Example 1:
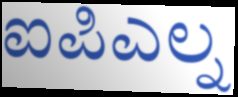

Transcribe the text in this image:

ಐಪಿಎಲ್ನ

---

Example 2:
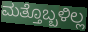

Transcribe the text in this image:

ಮತ್ತೊಬ್ಬಳಿಲ್ಲ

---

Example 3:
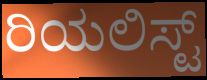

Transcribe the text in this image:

ರಿಯಲಿಸ್ಟ್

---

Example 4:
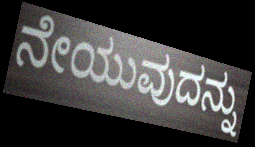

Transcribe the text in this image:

ನೇಯುವುದನ್ನು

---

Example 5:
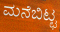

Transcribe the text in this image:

ಮನೆಬಿಟ್ಟ